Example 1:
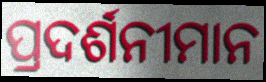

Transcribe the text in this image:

ପ୍ରଦର୍ଶନୀମାନ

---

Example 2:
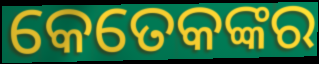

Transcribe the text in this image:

କେତେକଙ୍କର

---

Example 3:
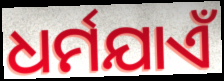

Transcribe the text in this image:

ଧର୍ମଯାଏଁ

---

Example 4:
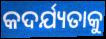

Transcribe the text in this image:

କଦର୍ଯ୍ୟତାକୁ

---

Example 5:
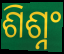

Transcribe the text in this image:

ଶିଶ୍ନଂ